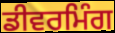
ਡੀਵਰਮਿੰਗ